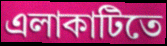
এলাকাটিতে